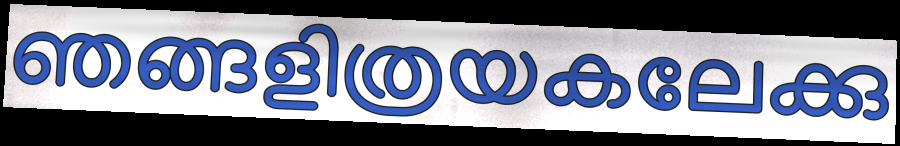
ഞങ്ങളിത്രയകലേക്കു